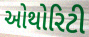
ઓથોરિટી